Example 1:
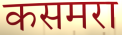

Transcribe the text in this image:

कसमरा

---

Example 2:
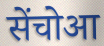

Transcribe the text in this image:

सेंचोआ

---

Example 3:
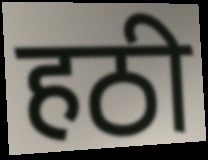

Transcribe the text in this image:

हठी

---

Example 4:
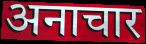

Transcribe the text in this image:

अनाचार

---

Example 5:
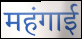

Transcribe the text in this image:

महंगाई